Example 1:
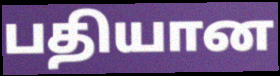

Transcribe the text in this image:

பதியான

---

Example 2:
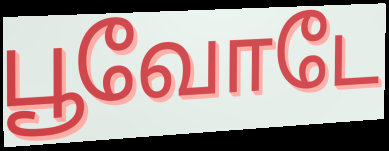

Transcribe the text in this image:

பூவோடே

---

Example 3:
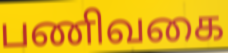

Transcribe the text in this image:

பணிவகை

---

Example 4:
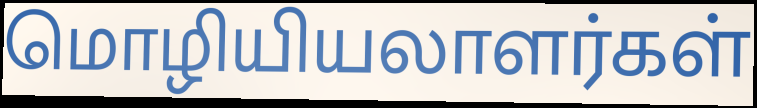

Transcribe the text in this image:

மொழியியலாளர்கள்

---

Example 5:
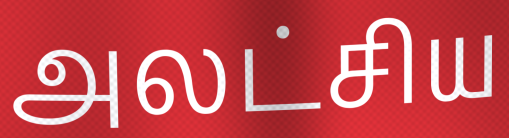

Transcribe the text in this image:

அலட்சிய